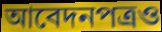
আবেদনপত্রও